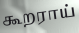
கூறராய்